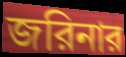
জরিনার